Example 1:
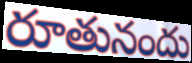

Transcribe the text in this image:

రూతునందు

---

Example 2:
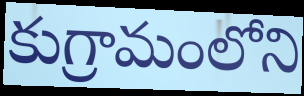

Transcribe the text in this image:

కుగ్రామంలోని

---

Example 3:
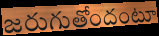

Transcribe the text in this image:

జరుగుతోందంటూ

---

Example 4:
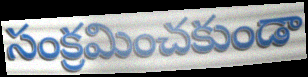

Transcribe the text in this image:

సంక్రమించకుండా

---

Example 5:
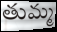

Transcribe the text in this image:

తుమ్మ